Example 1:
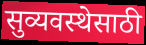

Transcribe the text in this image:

सुव्यवस्थेसाठी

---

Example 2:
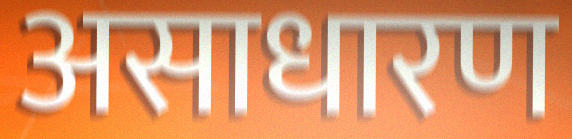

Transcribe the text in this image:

असाधारण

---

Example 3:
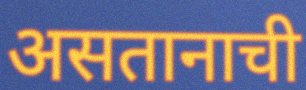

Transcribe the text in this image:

असतानाची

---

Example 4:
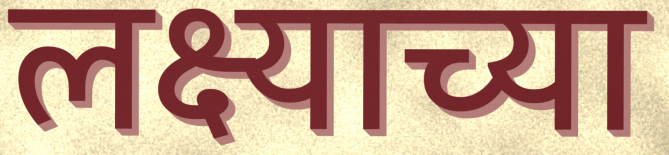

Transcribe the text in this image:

लक्ष्याच्या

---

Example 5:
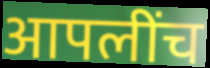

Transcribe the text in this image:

आपलींच